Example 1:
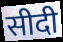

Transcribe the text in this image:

सीदी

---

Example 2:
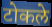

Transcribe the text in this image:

टोकले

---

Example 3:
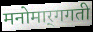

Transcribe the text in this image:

मनोमार्गगती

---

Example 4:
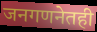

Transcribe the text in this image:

जनगणनेतही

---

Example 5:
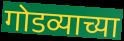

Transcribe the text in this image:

गोडव्याच्या